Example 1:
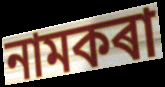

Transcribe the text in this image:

নামকৰা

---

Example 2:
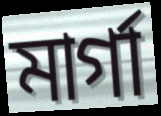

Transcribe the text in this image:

মাৰ্গা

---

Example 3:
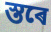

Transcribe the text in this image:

স্তৰে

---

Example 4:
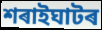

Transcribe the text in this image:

শৰাইঘাটৰ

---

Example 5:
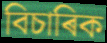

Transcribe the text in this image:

বিচাৰিক